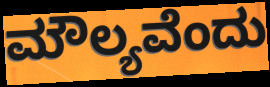
ಮೌಲ್ಯವೆಂದು